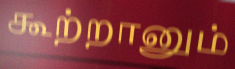
கூற்றானும்